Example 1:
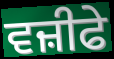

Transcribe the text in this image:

ਵਜ਼ੀਫੇ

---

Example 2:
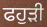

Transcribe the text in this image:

ਫਹੁੜੀ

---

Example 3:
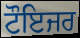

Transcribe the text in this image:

ਟੌਇਜਰ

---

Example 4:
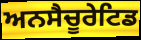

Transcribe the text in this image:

ਅਨਸੈਚੂਰੇਟਿਡ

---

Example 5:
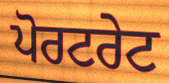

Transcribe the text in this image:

ਪੋਰਟਰੇਟ